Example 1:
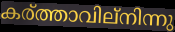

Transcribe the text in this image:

കര്ത്താവില്നിന്നു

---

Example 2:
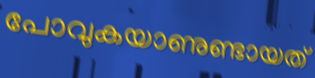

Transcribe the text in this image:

പോവുകയാണുണ്ടായത്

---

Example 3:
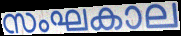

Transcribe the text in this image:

സംഘകാല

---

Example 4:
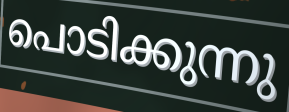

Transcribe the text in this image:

പൊടിക്കുന്നു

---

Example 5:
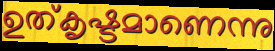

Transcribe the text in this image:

ഉത്കൃഷ്ടമാണെന്നു